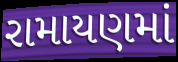
રામાયણમાં